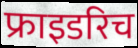
फ्राइडरिच